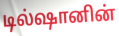
டில்ஷானின்